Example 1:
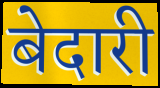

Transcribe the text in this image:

बेदारी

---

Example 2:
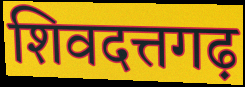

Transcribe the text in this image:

शिवदत्तगढ़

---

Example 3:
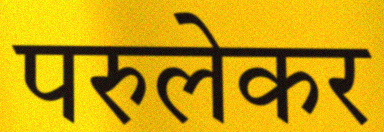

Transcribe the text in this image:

परुलेकर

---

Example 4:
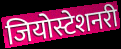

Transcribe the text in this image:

जियोस्टेशनरी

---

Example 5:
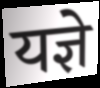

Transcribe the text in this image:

यज्ञे